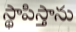
స్థాపిస్తాను